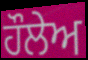
ਹੌਲੇਅ